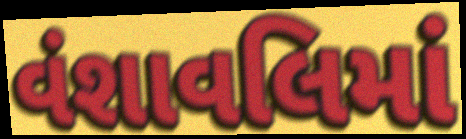
વંશાવલિમાં